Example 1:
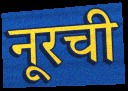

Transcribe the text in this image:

नूरची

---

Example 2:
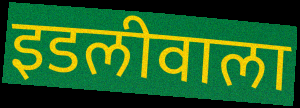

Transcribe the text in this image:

इडलीवाला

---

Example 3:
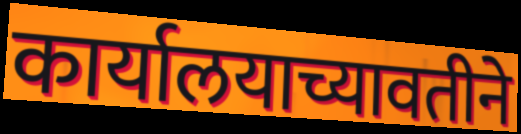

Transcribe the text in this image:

कार्यालयाच्यावतीने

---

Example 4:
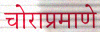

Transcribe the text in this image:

चोराप्रमाणे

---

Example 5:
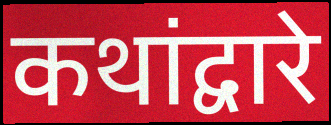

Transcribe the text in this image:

कथांद्वारे